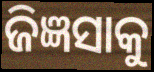
ଜିଜ୍ଞସାକୁ